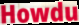
Howdu